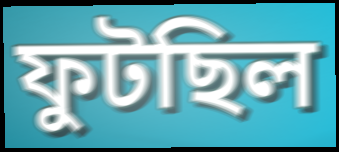
ফুটছিল